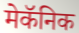
मेकॅनिक